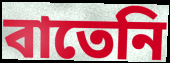
বাতেনি